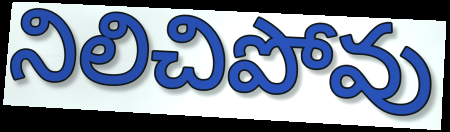
నిలిచిపోవు